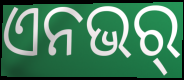
ଏନଭର୍